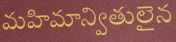
మహిమాన్వితులైన